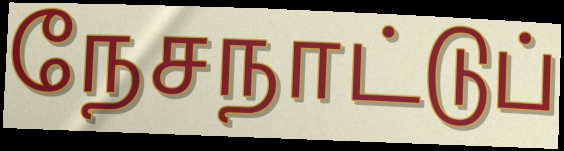
நேசநாட்டுப்